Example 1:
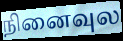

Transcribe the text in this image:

நினைவுல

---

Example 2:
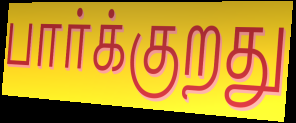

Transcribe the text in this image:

பார்க்குறது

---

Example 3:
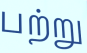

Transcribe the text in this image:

பற்று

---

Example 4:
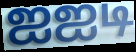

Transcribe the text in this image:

ஐஐடி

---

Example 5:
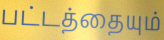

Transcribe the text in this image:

பட்டத்தையும்